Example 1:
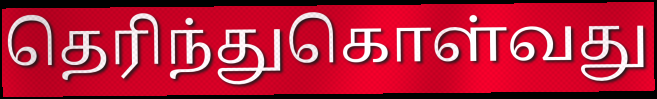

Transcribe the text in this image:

தெரிந்துகொள்வது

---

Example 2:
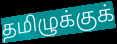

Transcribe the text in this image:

தமிழுக்குக்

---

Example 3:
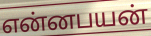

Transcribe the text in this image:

என்னபயன்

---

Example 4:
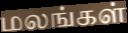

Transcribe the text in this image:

மலங்கள்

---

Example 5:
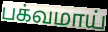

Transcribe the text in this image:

பக்வமாய்